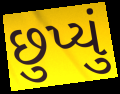
છુપ્યું